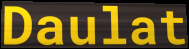
Daulat